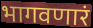
भागवणारं